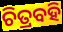
ଚିତ୍ରବହି